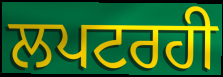
ਲਪਟਰਹੀ